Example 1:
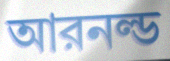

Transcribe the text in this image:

আরনল্ড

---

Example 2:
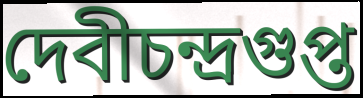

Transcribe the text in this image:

দেবীচন্দ্রগুপ্ত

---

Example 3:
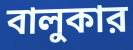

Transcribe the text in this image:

বালুকার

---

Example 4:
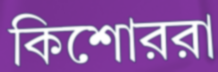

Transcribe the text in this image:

কিশোররা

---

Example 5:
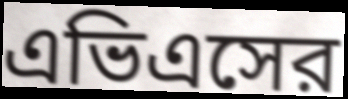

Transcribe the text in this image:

এভিএসের